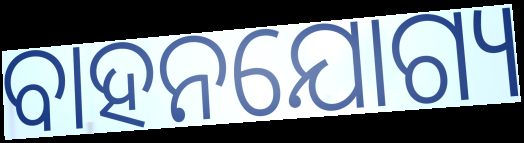
ବାହନଯୋଗ୍ୟ